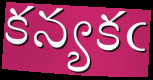
కన్యకఁ